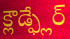
క్లౌడ్ఫ్లేర్